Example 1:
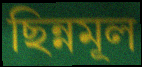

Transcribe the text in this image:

ছিন্নমূল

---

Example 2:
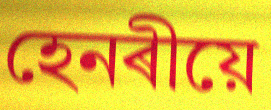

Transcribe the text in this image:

হেনৰীয়ে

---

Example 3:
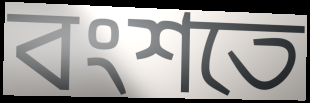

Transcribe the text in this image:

বংশতে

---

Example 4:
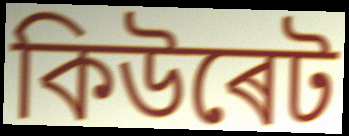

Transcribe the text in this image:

কিউৰেট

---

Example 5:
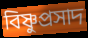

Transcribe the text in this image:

বিষ্ণুপ্ৰসাদ